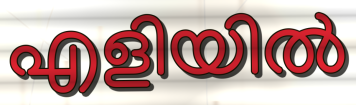
എളിയിൽ